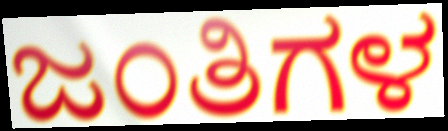
ಜಂತಿಗಳ